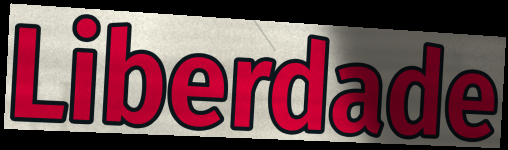
Liberdade